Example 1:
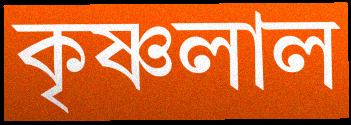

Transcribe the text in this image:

কৃষ্ণলাল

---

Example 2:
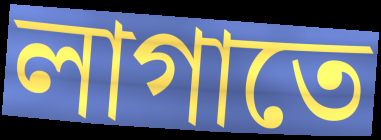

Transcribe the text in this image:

লাগাতে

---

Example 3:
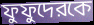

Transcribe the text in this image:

ফুফুদেরকে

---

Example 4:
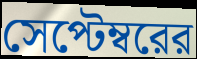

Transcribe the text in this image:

সেপ্টেম্বরের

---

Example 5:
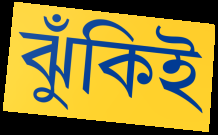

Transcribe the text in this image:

ঝুঁকিই